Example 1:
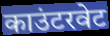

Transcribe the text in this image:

काउंटरवेट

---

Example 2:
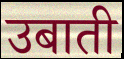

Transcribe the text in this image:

उबाती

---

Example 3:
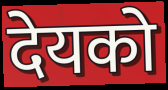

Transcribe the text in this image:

देयको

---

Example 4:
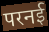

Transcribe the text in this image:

परनई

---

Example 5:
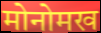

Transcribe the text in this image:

मोनोमख